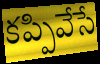
కప్పివేసే